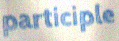
participle